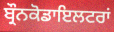
ਬ੍ਰੌਨਕੋਡਾਇਲਟਰਾਂ